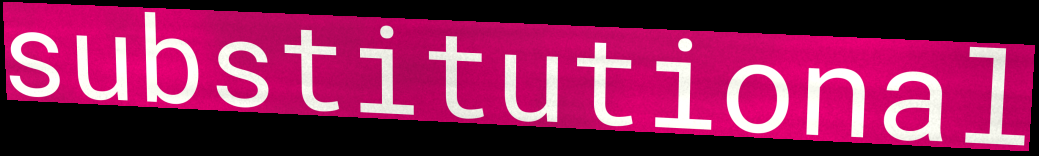
substitutional